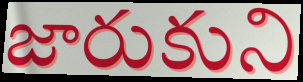
జారుకుని